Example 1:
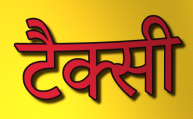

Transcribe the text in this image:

टैक्सी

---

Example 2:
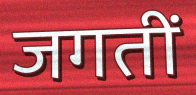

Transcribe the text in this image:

जगतीं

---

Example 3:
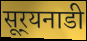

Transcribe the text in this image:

सूर्यनाडी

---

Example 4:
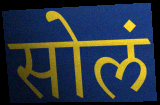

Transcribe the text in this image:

सोलं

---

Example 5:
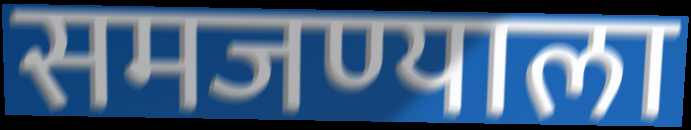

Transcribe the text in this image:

समजण्याला